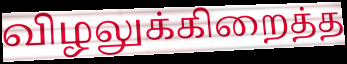
விழலுக்கிறைத்த